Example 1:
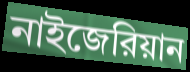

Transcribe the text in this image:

নাইজেরিয়ান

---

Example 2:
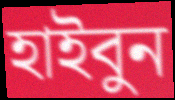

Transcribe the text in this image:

হাইবুন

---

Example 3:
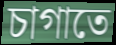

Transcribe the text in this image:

চাগাতে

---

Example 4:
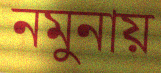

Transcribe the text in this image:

নমুনায়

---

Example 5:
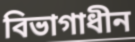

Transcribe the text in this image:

বিভাগাধীন